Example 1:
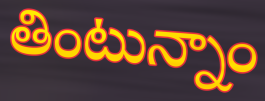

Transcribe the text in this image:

తింటున్నాం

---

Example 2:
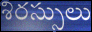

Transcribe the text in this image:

శిరస్సులు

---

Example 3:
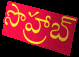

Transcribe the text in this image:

సొహ్రాబ్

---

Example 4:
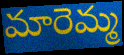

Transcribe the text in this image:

మారెమ్మ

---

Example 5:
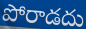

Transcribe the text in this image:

పోరాడదు